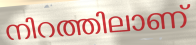
നിറത്തിലാണ്